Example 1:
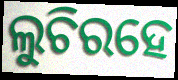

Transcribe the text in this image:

ଲୁଚିରହେ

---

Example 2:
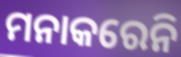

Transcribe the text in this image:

ମନାକରେନି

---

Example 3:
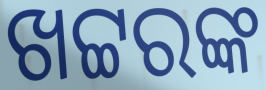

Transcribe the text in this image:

ଖଟ୍ଟରଙ୍କ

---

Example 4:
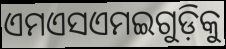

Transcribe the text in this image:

ଏମଏସଏମଇଗୁଡ଼ିକୁ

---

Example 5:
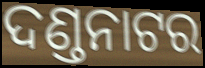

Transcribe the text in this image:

ଦଣ୍ଡନାଟର